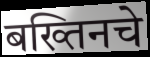
बख्तिनचे